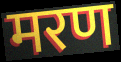
मरण